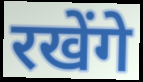
रखेंगे